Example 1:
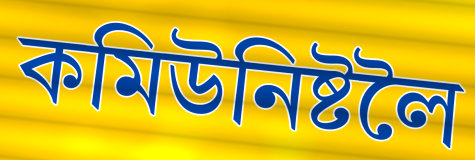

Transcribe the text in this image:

কমিউনিষ্টলৈ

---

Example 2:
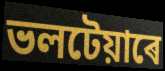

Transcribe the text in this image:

ভলটেয়াৰে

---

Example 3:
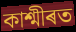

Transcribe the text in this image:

কাশ্মীৰত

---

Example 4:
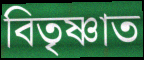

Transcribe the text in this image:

বিতৃষ্ণাত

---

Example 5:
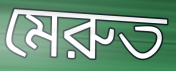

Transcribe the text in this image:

মেৰুত